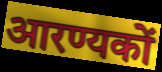
आरण्यकों